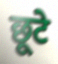
छूटे